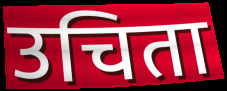
उचिता